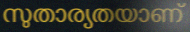
സുതാര്യതയാണ്